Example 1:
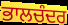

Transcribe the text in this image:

ਭਾਲਚੰਦਰ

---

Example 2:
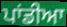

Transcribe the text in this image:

ਪਾਂਡੀਆ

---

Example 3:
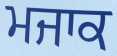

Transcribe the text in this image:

ਮਜਾਕ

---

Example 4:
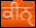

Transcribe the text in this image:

ਕੀਨੑ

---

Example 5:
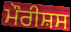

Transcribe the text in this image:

ਮੌਰੀਸ਼ਸ